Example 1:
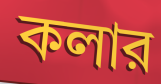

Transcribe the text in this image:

কলার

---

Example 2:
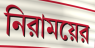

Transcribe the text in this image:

নিরাময়ের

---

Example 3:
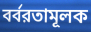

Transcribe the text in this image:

বর্বরতামূলক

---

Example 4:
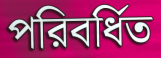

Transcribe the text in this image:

পরিবর্ধিত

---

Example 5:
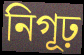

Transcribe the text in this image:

নিগূঢ়